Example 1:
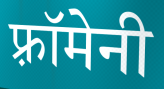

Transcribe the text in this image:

फ़्रॉमेनी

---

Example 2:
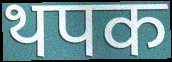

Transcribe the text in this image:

थपक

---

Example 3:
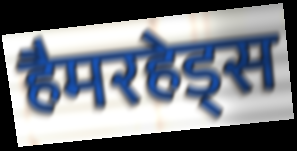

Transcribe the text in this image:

हैमरहेड्स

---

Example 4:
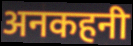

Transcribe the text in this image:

अनकहनी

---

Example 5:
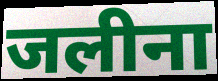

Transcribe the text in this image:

जलीना